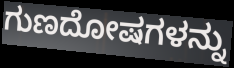
ಗುಣದೋಷಗಳನ್ನು